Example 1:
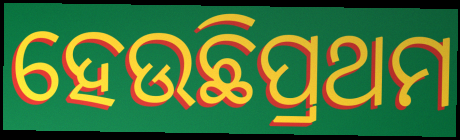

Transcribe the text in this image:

ହେଉଛିପ୍ରଥମ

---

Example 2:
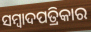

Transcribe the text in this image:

ସମ୍ବାଦପତ୍ରିକାର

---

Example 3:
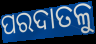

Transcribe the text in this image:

ପରଦାତଳୁ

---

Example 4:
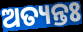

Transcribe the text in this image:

ଅତ୍ୟନ୍ତଃ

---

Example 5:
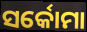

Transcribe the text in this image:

ସର୍କୋମା